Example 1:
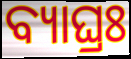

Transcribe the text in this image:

ବ୍ୟାଘ୍ରଃ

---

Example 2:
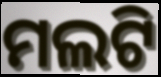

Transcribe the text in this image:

ମଲଟି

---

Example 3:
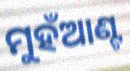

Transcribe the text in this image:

ମୁହଁଆଣ୍ଟ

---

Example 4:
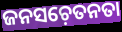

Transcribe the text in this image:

ଜନସଚ଼େତନତା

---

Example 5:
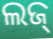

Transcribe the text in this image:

ଲଜ୍